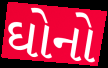
ઘોનો